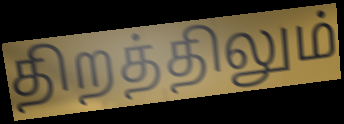
திறத்திலும்